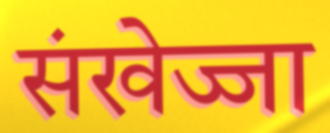
संखेज्जा